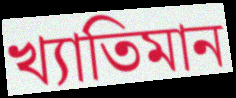
খ্যাতিমান